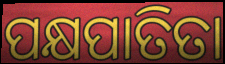
ପକ୍ଷପାତିତା